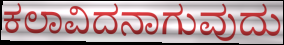
ಕಲಾವಿದನಾಗುವುದು